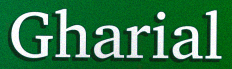
Gharial